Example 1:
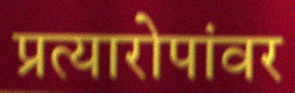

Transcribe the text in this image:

प्रत्यारोपांवर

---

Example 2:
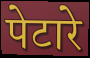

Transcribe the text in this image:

पेटारे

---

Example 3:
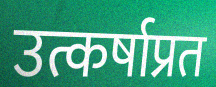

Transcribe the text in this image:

उत्कर्षाप्रत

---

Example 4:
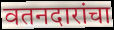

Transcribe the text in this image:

वतनदारांचा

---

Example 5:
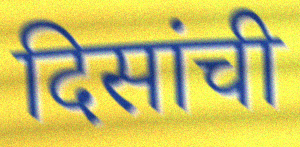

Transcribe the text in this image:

दिसांची